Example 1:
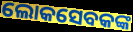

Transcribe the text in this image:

ଲୋକସେବକଙ୍କ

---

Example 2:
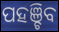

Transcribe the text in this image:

ପହଞ୍ଚିବ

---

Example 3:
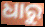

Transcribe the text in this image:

ଧାରୁ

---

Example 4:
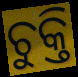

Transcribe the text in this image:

ଚୁକ୍ତି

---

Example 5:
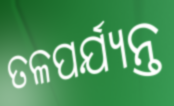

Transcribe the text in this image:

ତଳପର୍ଯ୍ୟନ୍ତ